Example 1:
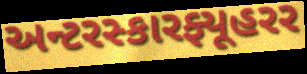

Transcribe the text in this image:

અન્ટરસ્કારફ્યૂહરર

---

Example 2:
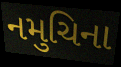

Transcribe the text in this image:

નમુચિના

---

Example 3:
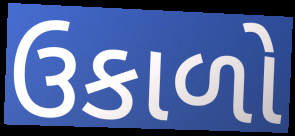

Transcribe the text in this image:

ઉકાળો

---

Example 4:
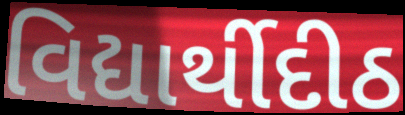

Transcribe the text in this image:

વિદ્યાર્થીદીઠ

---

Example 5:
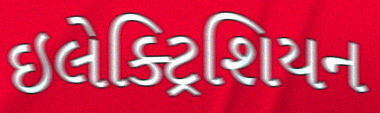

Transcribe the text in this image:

ઇલેક્ટ્રિશિયન